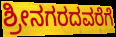
ಶ್ರೀನಗರದವರೆಗೆ